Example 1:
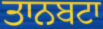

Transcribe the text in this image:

ਤਾਨਬਟਾ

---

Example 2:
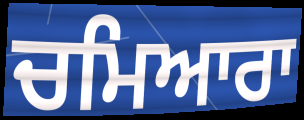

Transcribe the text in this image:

ਚਮਿਆਰਾ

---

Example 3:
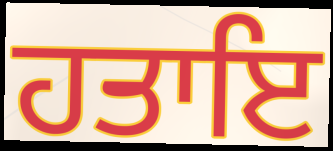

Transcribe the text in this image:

ਹਤਾਇ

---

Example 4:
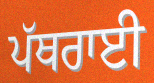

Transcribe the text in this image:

ਪੱਥਰਾਈ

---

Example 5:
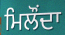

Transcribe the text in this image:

ਮਿਲੌਂਦਾ